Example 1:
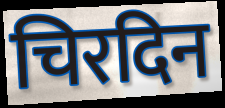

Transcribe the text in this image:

चिरदिन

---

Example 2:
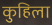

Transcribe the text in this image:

कुहिला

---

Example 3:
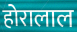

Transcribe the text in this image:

होरालाल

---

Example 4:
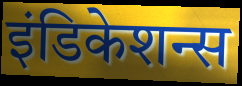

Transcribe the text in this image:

इंडिकेशन्स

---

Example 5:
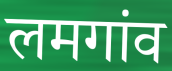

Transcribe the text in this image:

लमगांव